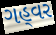
ગહ્‌વર